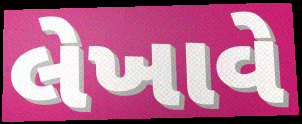
લેખાવે